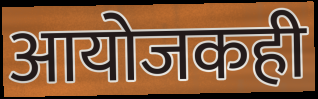
आयोजकही